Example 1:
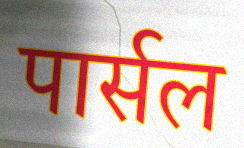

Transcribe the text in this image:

पार्सल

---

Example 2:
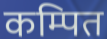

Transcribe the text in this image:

कम्पित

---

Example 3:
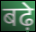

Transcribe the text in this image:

बढ़े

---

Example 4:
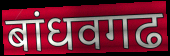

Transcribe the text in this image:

बांधवगढ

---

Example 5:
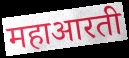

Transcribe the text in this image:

महाआरती